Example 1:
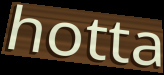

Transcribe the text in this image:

hotta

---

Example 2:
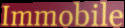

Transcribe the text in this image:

Immobile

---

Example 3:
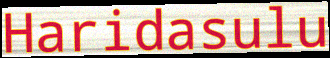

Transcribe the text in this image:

Haridasulu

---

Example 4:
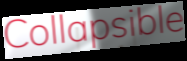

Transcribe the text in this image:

Collapsible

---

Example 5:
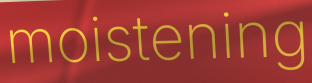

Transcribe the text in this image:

moistening